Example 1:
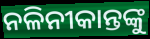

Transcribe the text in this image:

ନଳିନୀକାନ୍ତଙ୍କୁ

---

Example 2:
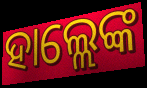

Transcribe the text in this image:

ହାଲ୍ଲେଙ୍କ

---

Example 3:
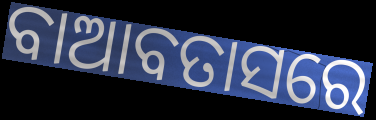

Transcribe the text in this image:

ବାଆବତାସରେ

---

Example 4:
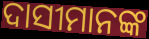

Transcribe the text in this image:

ଦାସୀମାନଙ୍କ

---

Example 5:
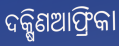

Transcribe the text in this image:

ଦକ୍ଷିଣଆଫ୍ରିକା